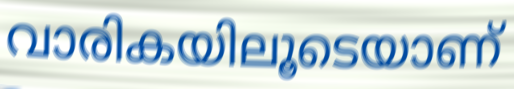
വാരികയിലൂടെയാണ്